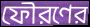
ফৌরণের